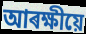
আৰক্ষীয়ে